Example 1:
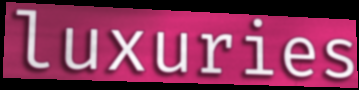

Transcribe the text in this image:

luxuries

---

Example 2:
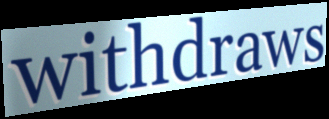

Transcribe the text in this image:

withdraws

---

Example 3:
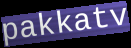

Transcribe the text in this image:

pakkatv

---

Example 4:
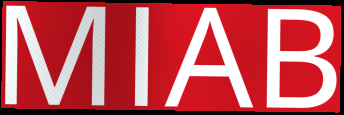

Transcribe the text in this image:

MIAB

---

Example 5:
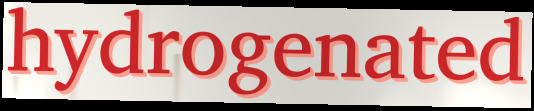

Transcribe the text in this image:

hydrogenated